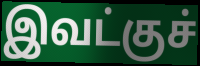
இவட்குச்